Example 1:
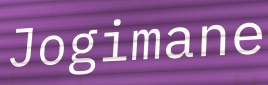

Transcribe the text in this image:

Jogimane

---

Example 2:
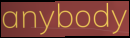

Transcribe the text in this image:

anybody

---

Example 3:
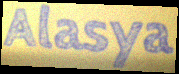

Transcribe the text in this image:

Alasya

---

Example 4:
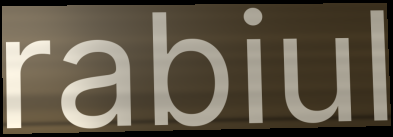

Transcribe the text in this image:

rabiul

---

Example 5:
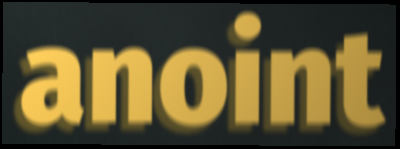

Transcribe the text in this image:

anoint